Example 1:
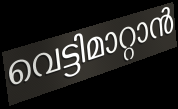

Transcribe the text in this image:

വെട്ടിമാറ്റാൻ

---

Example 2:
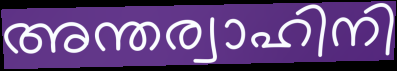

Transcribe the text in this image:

അന്തര്വാഹിനി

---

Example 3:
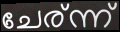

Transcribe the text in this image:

ചേര്ന്ന്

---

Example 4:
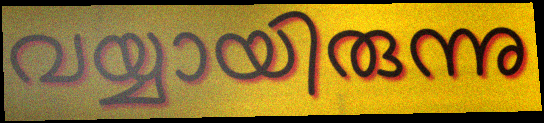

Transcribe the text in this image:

വയ്യായിരുന്നു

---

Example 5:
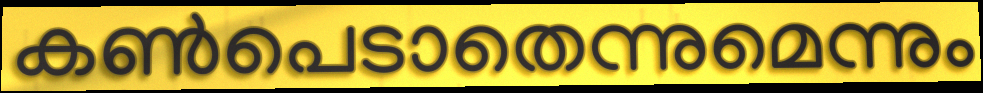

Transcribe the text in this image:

കൺപെടാതെന്നുമെന്നും